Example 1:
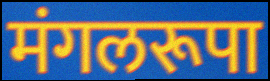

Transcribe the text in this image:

मंगलरूपा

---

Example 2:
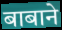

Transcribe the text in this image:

बाबाने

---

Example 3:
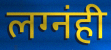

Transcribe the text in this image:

लग्नंही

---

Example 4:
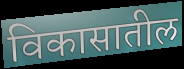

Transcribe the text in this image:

विकासातील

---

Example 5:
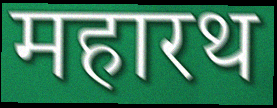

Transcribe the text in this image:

महारथ